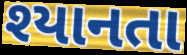
શ્યાનતા